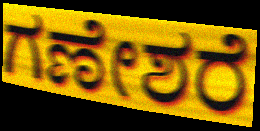
ಗಣೇಶರೆ